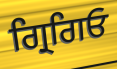
ਗ੍ਰਿਗਿਓ